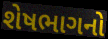
શેષભાગનો